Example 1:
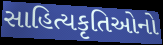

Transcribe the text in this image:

સાહિત્યકૃતિઓનો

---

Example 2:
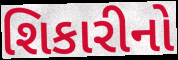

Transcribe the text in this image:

શિકારીનો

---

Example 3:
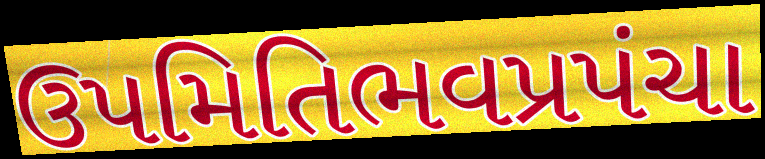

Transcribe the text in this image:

ઉપમિતિભવપ્રપંચા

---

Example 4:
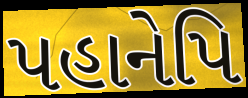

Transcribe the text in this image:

પહાનેપિ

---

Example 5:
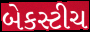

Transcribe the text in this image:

બેકસ્ટીચ